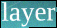
layer